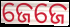
ଜେଜେ